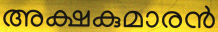
അക്ഷകുമാരൻ